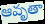
ఆవృతా